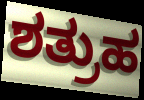
ಶತ್ರುಹ